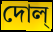
দোল্